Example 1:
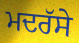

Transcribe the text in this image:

ਮਦਰੱਸੇ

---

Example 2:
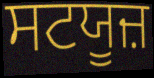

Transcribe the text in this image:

ਸਟਯੂਜ਼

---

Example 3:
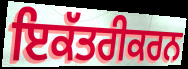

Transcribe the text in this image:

ਇਕੱਤਰੀਕਰਨ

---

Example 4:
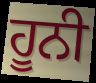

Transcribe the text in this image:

ਹੂਨੀ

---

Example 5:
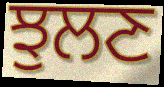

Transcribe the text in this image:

ਝੁਲਣ